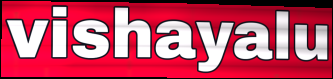
vishayalu